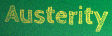
Austerity